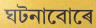
ঘটনাবোৰে